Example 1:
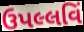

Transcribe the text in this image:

ઉપલ્લવિં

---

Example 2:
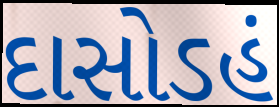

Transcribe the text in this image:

દાસોઽહં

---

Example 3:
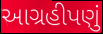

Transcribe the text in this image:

આગ્રહીપણું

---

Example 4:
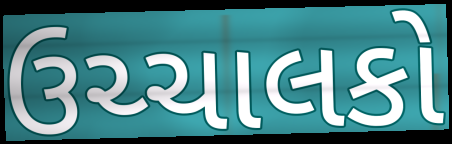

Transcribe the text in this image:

ઉચ્ચાલકો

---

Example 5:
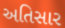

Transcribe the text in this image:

અતિસાર